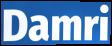
Damri